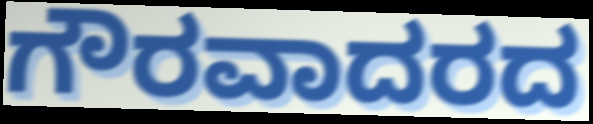
ಗೌರವಾದರದ